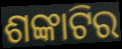
ଶଙ୍କାଟିର